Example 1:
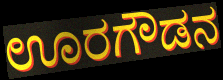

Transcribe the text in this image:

ಊರಗೌಡನ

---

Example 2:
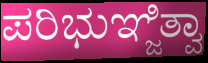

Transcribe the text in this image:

ಪರಿಭುಞ್ಜಿತ್ವಾ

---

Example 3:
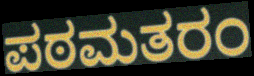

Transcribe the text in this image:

ಪಠಮತರಂ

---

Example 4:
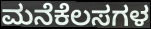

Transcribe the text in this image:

ಮನೆಕೆಲಸಗಳ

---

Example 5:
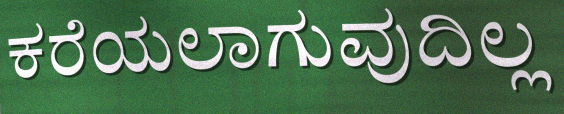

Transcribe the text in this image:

ಕರೆಯಲಾಗುವುದಿಲ್ಲ